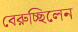
বেরুচ্ছিলেন